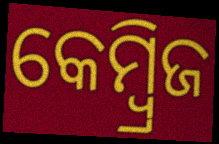
କେମ୍ବ୍ରିଜ